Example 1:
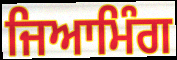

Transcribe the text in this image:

ਜਿਆਮਿੰਗ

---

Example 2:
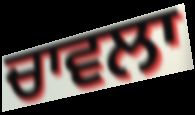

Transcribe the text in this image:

ਚਾਵਲਾ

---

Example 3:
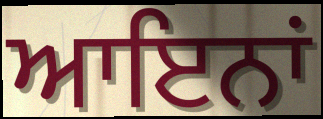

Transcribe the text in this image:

ਆਇਨਾਂ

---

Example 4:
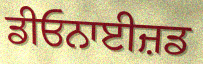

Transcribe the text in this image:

ਡੀਓਨਾਈਜ਼ਡ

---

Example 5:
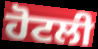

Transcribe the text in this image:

ਹੋਟਲੀ